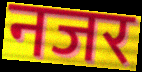
नजर